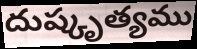
దుష్కృత్యము